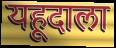
यहूदाला